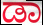
ಡಾ